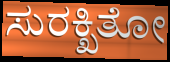
ಸುರಕ್ಖಿತೋ